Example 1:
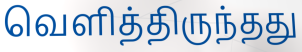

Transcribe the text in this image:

வெளித்திருந்தது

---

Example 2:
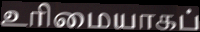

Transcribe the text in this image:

உரிமையாகப்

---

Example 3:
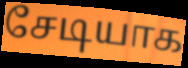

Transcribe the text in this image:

சேடியாக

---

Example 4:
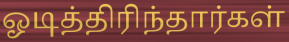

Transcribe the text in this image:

ஓடித்திரிந்தார்கள்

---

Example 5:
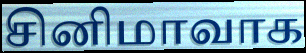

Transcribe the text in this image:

சினிமாவாக